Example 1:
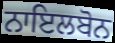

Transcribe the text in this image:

ਨਾਇਲਬੋਨ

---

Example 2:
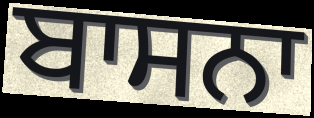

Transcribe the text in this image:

ਬਾਸਨਾ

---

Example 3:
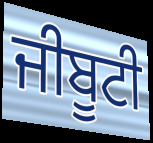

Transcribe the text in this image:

ਜੀਬੂਟੀ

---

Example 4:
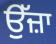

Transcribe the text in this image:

ਉੱਜ਼ਾ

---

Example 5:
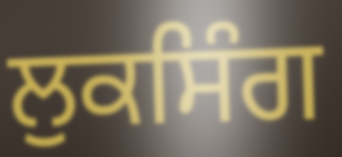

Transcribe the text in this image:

ਲੁਕਸਿੰਗ